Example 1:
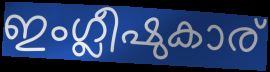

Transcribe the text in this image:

ഇംഗ്ലീഷുകാര്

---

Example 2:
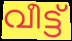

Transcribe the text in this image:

വീട്ട്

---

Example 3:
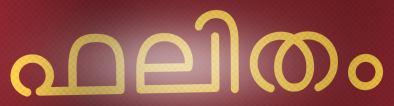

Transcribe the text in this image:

ഫലിതം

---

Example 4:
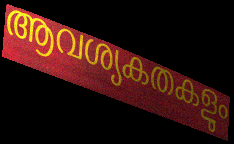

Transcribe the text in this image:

ആവശ്യകതകളും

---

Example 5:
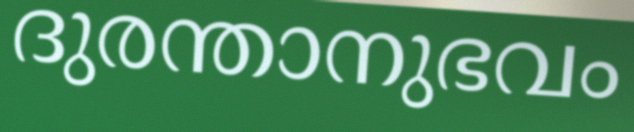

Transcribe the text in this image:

ദുരന്താനുഭവം